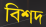
বিশদ